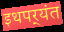
इथपर्यंत